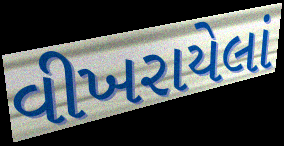
વીખરાયેલાં